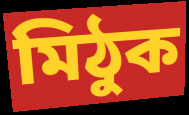
মিঠুক